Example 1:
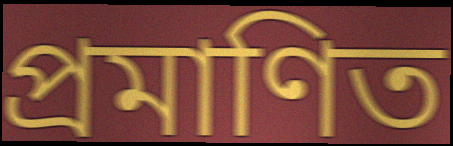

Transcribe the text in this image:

প্রমাণিত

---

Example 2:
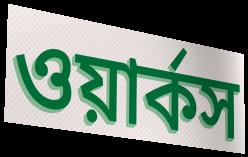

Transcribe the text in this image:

ওয়ার্কস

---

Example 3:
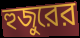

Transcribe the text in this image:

হুজুরের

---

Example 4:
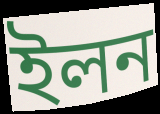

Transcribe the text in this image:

ইলন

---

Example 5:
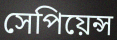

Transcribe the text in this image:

সেপিয়েন্স